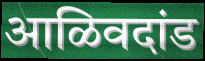
आळिवदांड